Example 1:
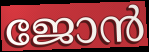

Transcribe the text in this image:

ജോൻ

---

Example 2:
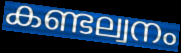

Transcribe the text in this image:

കണ്ടല്വനം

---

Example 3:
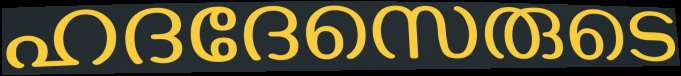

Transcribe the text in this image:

ഹദദേസെരുടെ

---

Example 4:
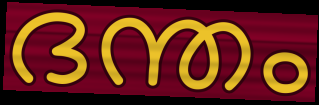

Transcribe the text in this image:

ദന്തം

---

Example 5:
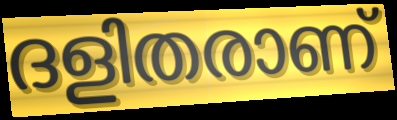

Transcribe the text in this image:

ദളിതരാണ്